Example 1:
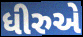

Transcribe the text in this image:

ધીરુએ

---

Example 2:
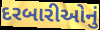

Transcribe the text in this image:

દરબારીઓનું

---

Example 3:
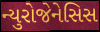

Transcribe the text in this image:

ન્યુરોજેનેસિસ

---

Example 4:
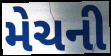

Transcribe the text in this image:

મેચની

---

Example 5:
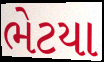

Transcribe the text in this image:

ભેટયા